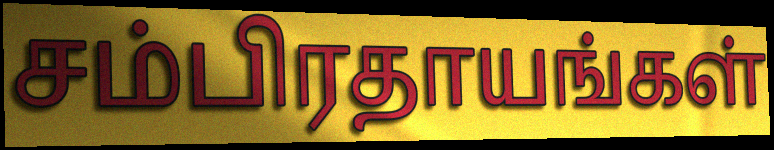
சம்பிரதாயங்கள்